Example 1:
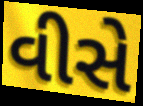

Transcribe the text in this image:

વીસે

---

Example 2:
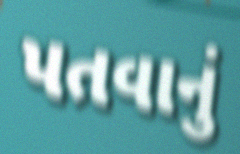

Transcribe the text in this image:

પતવાનું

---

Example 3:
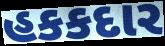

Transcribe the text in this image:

હકકદાર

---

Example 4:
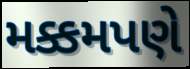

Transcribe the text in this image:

મક્કમપણે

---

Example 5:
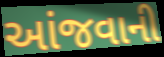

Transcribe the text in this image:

આંજવાની